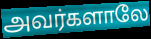
அவர்களாலே